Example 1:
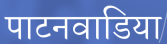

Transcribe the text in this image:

पाटनवाडिया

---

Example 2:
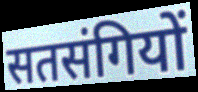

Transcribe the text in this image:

सतसंगियों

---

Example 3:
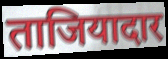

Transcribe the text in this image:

ताजियादार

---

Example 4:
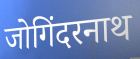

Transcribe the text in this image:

जोगिंदरनाथ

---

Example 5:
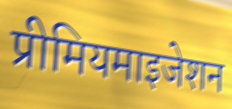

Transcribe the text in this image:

प्रीमियमाइजेशन